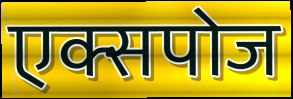
एक्सपोज